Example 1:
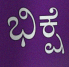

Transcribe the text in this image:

ಭಿಕ್ಷೆ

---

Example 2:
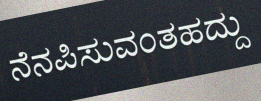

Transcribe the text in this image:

ನೆನಪಿಸುವಂತಹದ್ದು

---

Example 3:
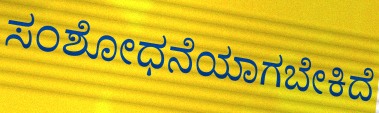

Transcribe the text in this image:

ಸಂಶೋಧನೆಯಾಗಬೇಕಿದೆ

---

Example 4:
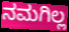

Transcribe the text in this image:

ನಮಗಿಲ್ಲ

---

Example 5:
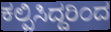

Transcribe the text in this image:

ಕಲ್ಪಿಸಿದ್ದರಿಂದ